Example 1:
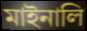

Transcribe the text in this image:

মাইনালি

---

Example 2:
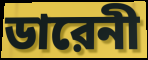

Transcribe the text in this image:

ডারেনী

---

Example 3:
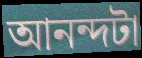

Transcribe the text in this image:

আনন্দটা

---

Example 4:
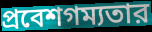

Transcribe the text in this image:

প্রবেশগম্যতার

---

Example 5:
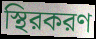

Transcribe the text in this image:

স্থিরকরণ